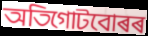
অতিগোটবোৰৰ